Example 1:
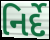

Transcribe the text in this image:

નિર્દે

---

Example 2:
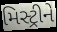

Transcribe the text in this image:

મિસ્ટ્રીને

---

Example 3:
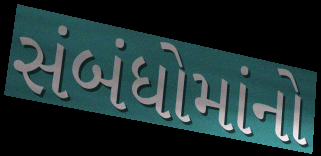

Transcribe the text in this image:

સંબંધોમાંનો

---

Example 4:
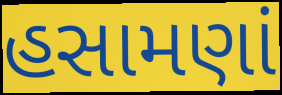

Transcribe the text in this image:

હસામણાં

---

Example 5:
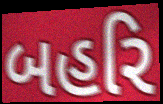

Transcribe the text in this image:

બહરિ